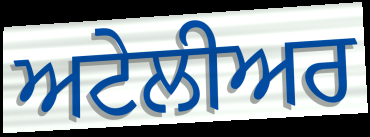
ਅਟੇਲੀਅਰ